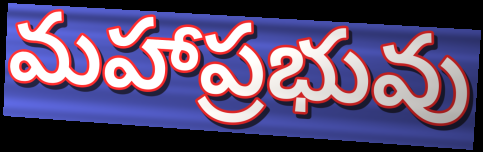
మహాప్రభువు